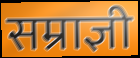
सम्राज्ञी